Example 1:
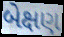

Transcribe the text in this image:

બેક્ષણ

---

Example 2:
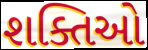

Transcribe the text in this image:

શક્તિઓ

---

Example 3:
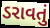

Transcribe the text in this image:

ડરાવતું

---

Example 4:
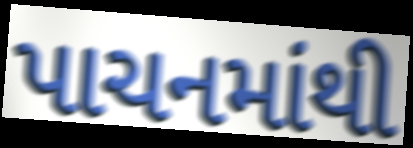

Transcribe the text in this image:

પાચનમાંથી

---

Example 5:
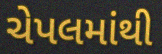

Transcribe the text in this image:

ચેપલમાંથી